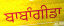
ਬਾਬਾੰਗੀਡਾ